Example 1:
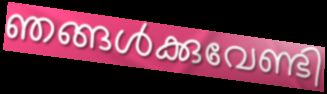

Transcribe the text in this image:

ഞങ്ങൾക്കുവേണ്ടി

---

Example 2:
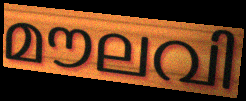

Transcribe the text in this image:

മൗലവി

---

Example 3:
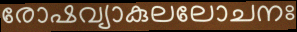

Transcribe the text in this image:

രോഷവ്യാകുലലോചനഃ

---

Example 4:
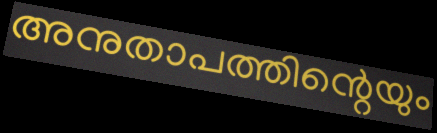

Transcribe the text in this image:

അനുതാപത്തിന്റെയും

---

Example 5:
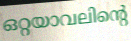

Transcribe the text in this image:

ഒറ്റയാവലിന്റെ